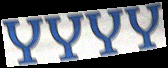
YYYY